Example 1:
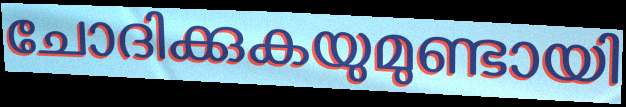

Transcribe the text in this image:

ചോദിക്കുകയുമുണ്ടായി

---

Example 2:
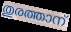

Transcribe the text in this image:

തുരത്താന്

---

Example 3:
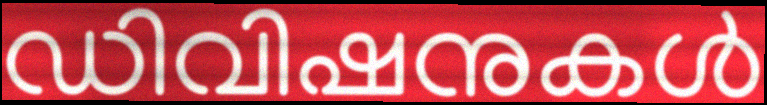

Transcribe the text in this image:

ഡിവിഷനുകൾ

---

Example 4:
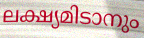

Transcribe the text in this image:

ലക്ഷ്യമിടാനും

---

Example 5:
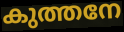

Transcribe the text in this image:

കുത്തനേ